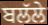
ਬਲੱਲੇ